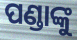
ପଣ୍ଡାଙ୍କୁ